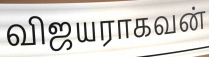
விஜயராகவன்